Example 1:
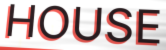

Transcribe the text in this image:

HOUSE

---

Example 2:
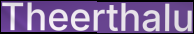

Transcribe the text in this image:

Theerthalu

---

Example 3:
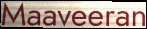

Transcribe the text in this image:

Maaveeran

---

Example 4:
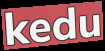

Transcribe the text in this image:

kedu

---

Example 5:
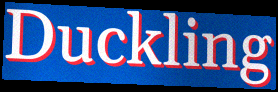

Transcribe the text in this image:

Duckling